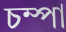
চম্পা